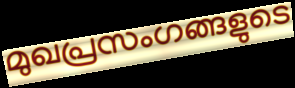
മുഖപ്രസംഗങ്ങളുടെ